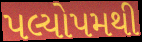
પલ્યોપમથી